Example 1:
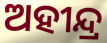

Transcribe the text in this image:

ଅହୀନ୍ଦ୍ର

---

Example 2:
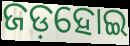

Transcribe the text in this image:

ଜଡ଼ହୋଇ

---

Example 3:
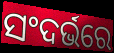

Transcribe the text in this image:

ସଂଦର୍ଭରେ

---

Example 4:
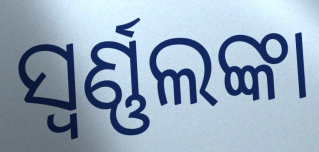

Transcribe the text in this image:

ସ୍ବର୍ଣ୍ଣଲଙ୍କା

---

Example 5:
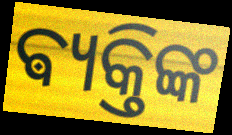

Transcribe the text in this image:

ଵ୍ୟକ୍ତିଙ୍କ